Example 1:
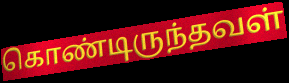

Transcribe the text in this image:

கொண்டிருந்தவள்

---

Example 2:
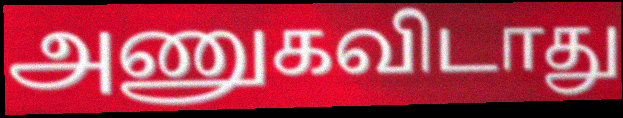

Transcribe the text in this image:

அணுகவிடாது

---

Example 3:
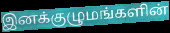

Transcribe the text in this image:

இனக்குழுமங்களின்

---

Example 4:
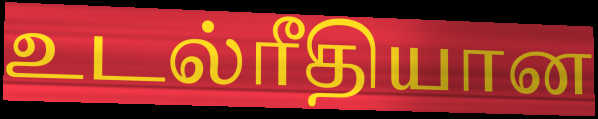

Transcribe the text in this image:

உடல்ரீதியான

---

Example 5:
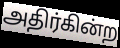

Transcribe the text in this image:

அதிர்கின்ற